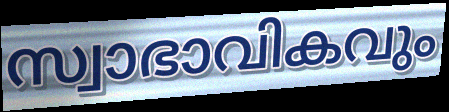
സ്വാഭാവികവും